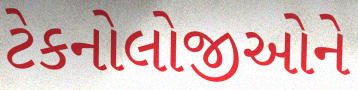
ટેકનોલોજીઓને